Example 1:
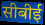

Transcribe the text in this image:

सीबीई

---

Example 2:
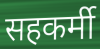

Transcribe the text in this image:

सहकर्मी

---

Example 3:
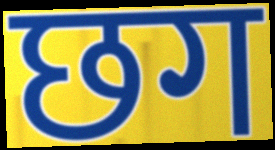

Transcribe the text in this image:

छग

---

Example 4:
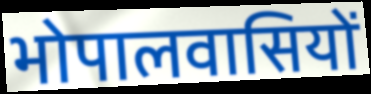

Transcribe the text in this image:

भोपालवासियों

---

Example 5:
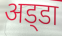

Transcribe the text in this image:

अड्‌डा